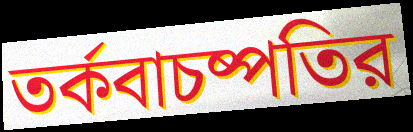
তর্কবাচষ্পতির